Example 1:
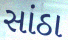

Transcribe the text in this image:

સાંઠા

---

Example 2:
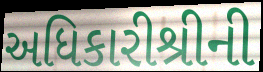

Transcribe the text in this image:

અધિકારીશ્રીની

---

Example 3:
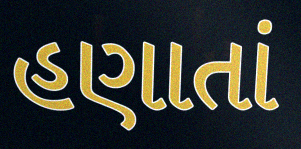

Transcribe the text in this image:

હણાતાં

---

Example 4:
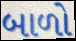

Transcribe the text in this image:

બાળો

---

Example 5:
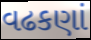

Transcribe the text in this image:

વઢકણાં